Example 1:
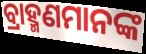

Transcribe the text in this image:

ବ୍ରାହ୍ମଣମାନଙ୍କ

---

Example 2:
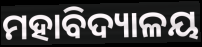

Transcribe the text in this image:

ମହାବିଦ୍ୟାଳୟ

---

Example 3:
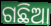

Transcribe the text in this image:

ଗଛିଆ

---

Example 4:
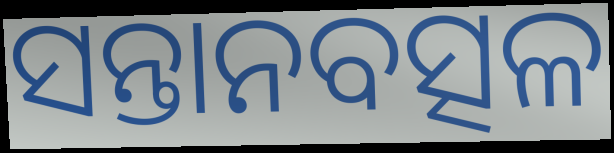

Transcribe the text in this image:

ସନ୍ତାନବତ୍ସଳ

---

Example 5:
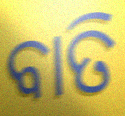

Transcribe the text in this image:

ବାତି